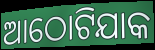
ଆଠୋଟିଯାକ